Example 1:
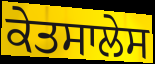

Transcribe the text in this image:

ਕੇਤਸਾਲੇਸ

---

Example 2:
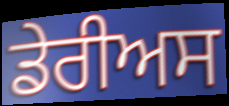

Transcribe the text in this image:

ਡੇਰੀਅਸ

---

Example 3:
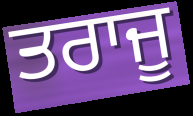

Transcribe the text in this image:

ਤਰਾਜੂ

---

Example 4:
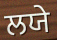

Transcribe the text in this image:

ਲਯੇ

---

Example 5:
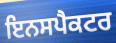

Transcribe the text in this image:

ਇਨਸਪੈਕਟਰ